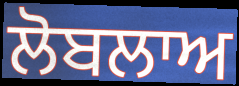
ਲੋਬਲਾਅ